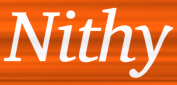
Nithy